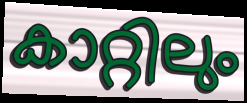
കാറ്റിലും